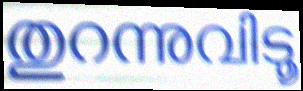
തുറന്നുവിടൂ